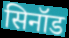
सिनॉड